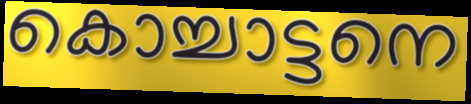
കൊച്ചാട്ടനെ